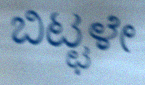
ಬಿಟ್ಟಳೇ